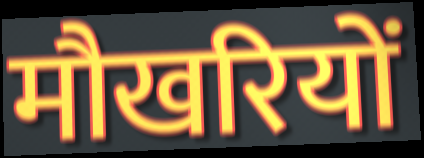
मौखरियों